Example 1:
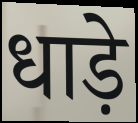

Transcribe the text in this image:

धाड़े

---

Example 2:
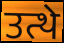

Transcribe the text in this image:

उत्थे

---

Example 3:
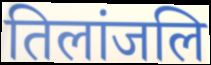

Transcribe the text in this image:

तिलांजलि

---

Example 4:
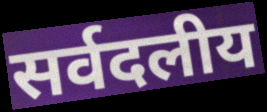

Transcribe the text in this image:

सर्वदलीय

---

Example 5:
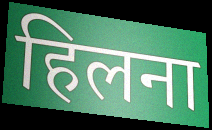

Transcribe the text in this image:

हिलना